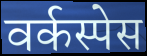
वर्कस्पेस